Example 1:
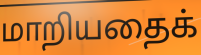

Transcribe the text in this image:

மாறியதைக்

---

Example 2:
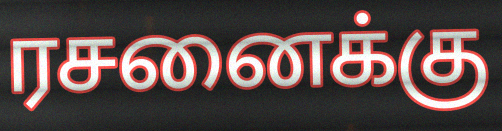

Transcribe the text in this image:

ரசனைக்கு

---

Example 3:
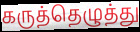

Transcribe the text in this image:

கருத்தெழுத்து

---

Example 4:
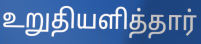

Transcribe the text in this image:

உறுதியளித்தார்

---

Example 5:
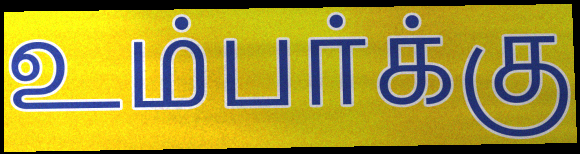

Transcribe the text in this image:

உம்பர்க்கு